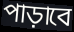
পাড়াবে